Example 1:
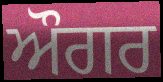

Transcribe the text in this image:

ਔਗਰ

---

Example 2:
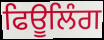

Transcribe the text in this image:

ਫਿਊਲਿੰਗ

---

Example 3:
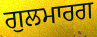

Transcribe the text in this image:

ਗੁਲਮਾਰਗ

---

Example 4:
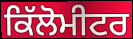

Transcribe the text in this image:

ਕਿੱਲੋਮੀਟਰ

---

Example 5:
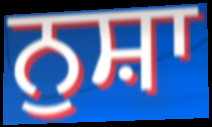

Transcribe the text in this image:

ਨੁਸ਼ਾ